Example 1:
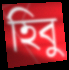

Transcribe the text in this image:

হিবু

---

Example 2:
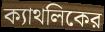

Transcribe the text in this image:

ক্যাথলিকের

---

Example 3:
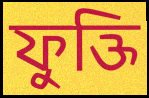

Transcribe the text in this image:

ফুক্তি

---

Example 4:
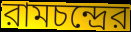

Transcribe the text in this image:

রামচন্দ্রের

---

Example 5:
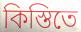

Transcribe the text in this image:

কিস্তিতে